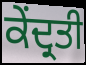
ਕੇਂਦ੍ਰਤੀ